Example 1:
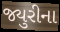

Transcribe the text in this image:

જ્યુરીના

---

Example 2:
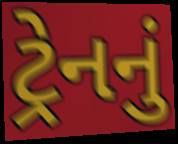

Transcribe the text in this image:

ટ્રેનનું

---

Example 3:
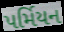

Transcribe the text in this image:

પર્મિયન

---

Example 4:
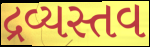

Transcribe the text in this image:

દ્રવ્યસ્તવ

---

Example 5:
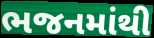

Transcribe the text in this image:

ભજનમાંથી